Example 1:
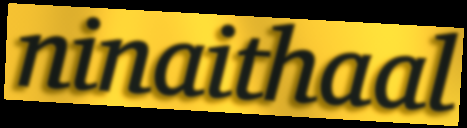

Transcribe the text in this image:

ninaithaal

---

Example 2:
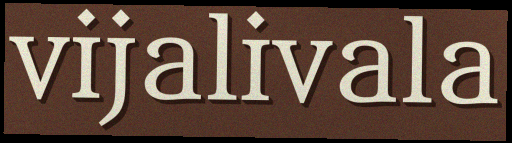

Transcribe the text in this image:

vijalivala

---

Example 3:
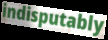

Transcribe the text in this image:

indisputably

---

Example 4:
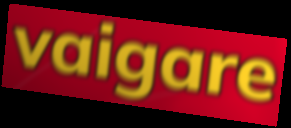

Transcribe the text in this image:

vaigare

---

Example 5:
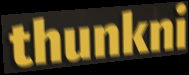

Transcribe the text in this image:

thunkni